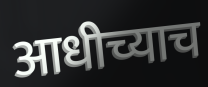
आधीच्याच